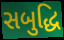
સબુદ્ધિ